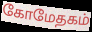
கோமேதகம்